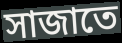
সাজাতে